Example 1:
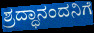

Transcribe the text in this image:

ಶ್ರದ್ಧಾನಂದನಿಗೆ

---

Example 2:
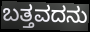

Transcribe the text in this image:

ಬತ್ತವದನು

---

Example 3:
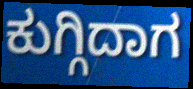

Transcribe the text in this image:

ಕುಗ್ಗಿದಾಗ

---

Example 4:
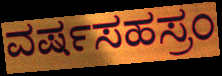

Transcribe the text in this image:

ವರ್ಷಸಹಸ್ರಂ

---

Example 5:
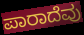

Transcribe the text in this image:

ಪಾರಾದೆವು